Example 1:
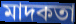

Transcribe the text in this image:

মাদকতা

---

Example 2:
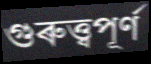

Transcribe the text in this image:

গুৰুত্ত্বপূৰ্ণ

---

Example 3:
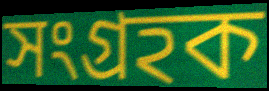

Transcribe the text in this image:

সংগ্ৰহক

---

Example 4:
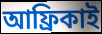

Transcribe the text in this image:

আফ্ৰিকাই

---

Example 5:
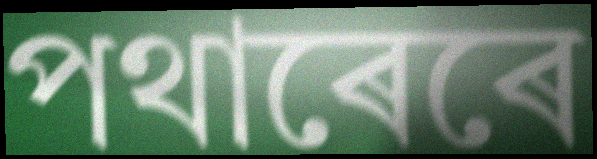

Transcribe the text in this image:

পথাৰেৰে